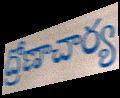
ద్రోణాచార్య